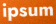
ipsum